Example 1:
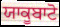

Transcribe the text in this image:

ਯਾਕੂਬਾਟੋ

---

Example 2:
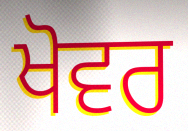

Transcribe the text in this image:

ਖੋਵਰ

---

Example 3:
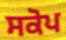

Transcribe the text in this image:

ਸਕੋਪ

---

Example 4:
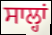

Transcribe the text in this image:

ਸਾਲ੍ਹਾਂ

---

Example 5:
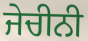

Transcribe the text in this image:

ਜੇਚੀਨੀ